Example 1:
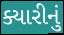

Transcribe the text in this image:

ક્યારીનું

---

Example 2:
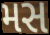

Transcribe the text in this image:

મસ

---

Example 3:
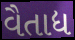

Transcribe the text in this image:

વૈતાદ્ય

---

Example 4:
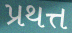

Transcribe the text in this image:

પ્રથત્ત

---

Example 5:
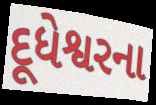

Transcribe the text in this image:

દૂધેશ્વરના